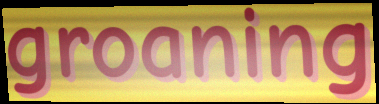
groaning